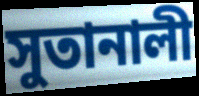
সুতানালী